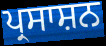
ਪ੍ਰਸਾਸ਼ਨ